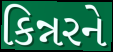
કિન્નરને